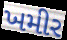
ખમીર